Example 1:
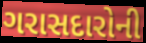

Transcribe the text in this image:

ગરાસદારોની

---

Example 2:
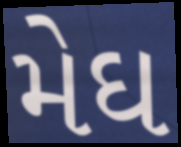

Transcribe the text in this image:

મેઘ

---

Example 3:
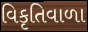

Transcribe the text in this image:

વિકૃતિવાળા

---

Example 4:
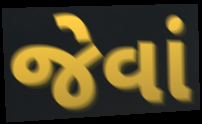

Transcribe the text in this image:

જેવાં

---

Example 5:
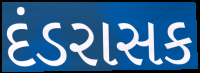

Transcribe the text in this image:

દંડરાસક